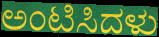
ಅಂಟಿಸಿದಳು